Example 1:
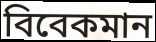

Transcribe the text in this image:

বিবেকমান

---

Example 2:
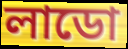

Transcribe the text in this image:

লাডো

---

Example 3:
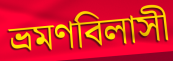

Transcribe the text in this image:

ভ্রমণবিলাসী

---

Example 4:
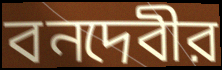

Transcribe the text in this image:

বনদেবীর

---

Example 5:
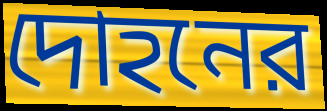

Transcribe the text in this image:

দোহনের